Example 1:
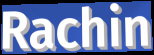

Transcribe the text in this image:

Rachin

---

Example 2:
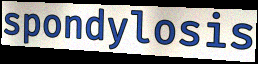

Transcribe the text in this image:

spondylosis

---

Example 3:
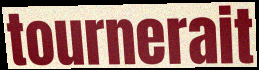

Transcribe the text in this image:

tournerait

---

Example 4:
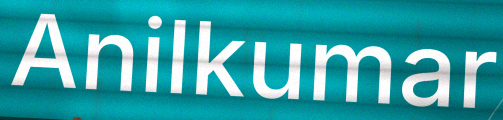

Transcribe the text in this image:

Anilkumar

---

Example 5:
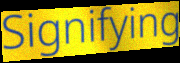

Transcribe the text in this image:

Signifying